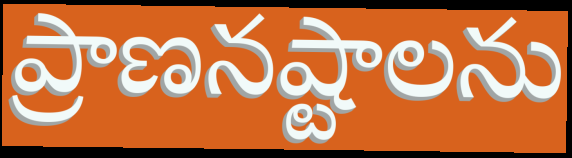
ప్రాణనష్టాలను